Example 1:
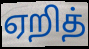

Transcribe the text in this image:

ஏறித்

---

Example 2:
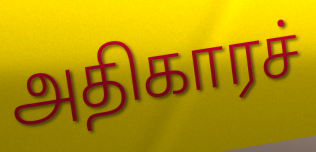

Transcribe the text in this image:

அதிகாரச்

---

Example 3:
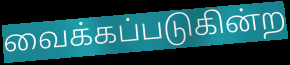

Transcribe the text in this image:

வைக்கப்படுகின்ற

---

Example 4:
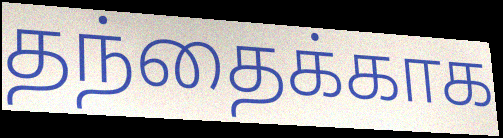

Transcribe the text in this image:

தந்தைக்காக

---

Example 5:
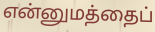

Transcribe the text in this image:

என்னுமத்தைப்